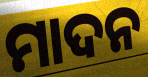
ମାଦନ